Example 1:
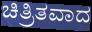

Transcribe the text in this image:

ಚಿತ್ರಿತವಾದ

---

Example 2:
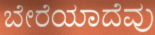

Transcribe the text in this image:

ಬೇರೆಯಾದೆವು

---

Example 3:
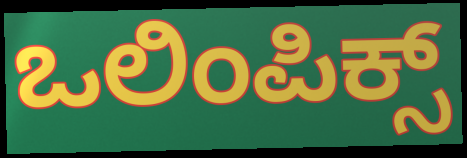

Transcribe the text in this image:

ಒಲಿಂಪಿಕ್ಸ್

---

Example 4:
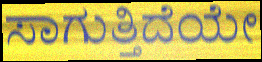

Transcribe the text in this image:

ಸಾಗುತ್ತಿದೆಯೇ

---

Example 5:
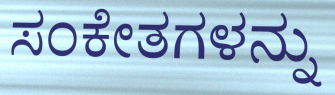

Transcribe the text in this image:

ಸಂಕೇತಗಳನ್ನು